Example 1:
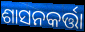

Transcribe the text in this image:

ଶାସନକର୍ତ୍ତା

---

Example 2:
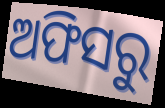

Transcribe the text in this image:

ଅଫିସରୁ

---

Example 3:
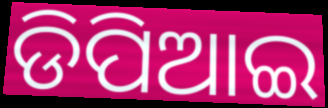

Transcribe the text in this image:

ଡିପିଆଇ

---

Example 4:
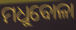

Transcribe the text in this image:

ମଧୁବୋଳା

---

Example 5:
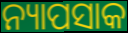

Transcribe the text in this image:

ନ୍ୟାପସାକ